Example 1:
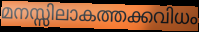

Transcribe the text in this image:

മനസ്സിലാകത്തക്കവിധം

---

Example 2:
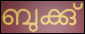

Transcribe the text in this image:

ബുക്കു്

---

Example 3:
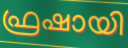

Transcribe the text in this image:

ഫ്രഷായി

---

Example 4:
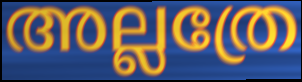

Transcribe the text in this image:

അല്ലത്രേ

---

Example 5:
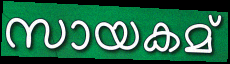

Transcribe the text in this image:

സായകമ്